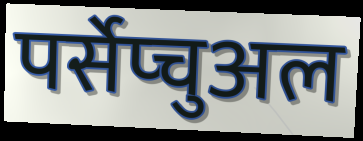
पर्सेप्चुअल